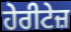
ਹੇਰੀਟੇਜ਼